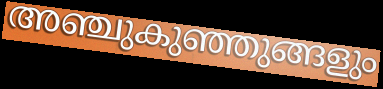
അഞ്ചുകുഞ്ഞുങ്ങളും